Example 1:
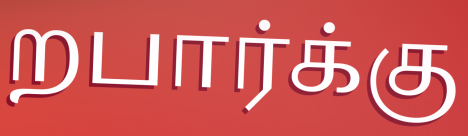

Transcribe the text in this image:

றபார்க்கு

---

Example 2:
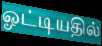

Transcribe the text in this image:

ஓட்டியதில்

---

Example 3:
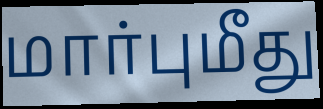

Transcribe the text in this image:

மார்புமீது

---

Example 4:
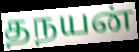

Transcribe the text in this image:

தநயன்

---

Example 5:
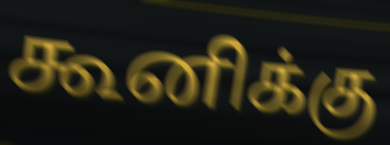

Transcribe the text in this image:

கூனிக்கு